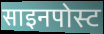
साइनपोस्ट